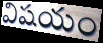
విషయం